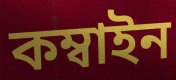
কম্বাইন